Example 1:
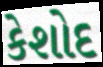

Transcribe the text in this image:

કેશોદ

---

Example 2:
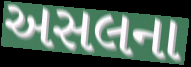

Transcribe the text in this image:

અસલના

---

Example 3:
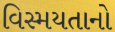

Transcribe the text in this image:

વિસ્મયતાનો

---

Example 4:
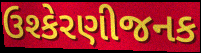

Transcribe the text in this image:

ઉશ્કેરણીજનક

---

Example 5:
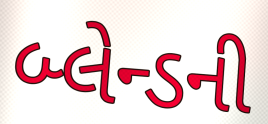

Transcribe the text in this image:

બ્લેન્ડની